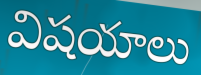
విషయాలు